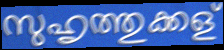
സുഹൃത്തുക്കള്